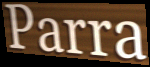
Parra